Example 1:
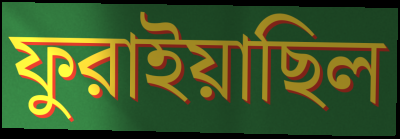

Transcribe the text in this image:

ফুরাইয়াছিল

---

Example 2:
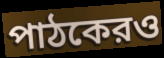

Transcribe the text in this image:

পাঠকেরও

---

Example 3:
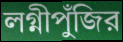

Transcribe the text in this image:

লগ্নীপুঁজির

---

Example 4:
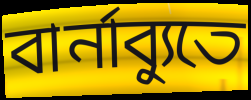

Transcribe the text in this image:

বার্নাব্যুতে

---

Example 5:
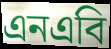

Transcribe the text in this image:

এনএবি